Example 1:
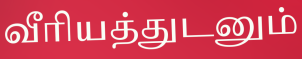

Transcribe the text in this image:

வீரியத்துடனும்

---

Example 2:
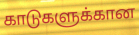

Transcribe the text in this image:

காடுகளுக்கான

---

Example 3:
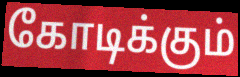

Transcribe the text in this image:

கோடிக்கும்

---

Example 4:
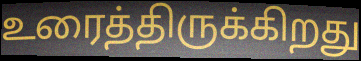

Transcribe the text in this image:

உரைத்திருக்கிறது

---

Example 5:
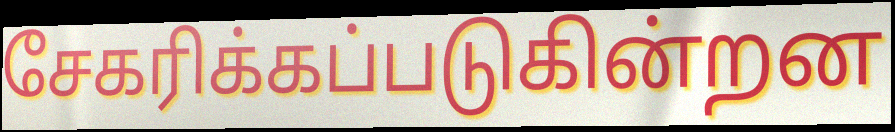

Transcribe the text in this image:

சேகரிக்கப்படுகின்றன